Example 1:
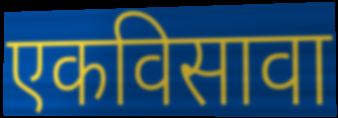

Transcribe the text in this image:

एकविसावा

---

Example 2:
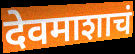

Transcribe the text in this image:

देवमाशाचं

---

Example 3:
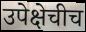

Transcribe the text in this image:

उपेक्षेचीच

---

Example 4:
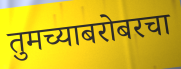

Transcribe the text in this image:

तुमच्याबरोबरचा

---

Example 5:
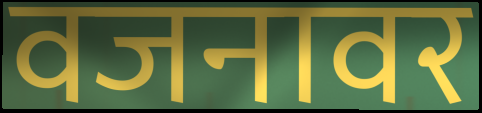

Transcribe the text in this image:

वजनावर